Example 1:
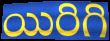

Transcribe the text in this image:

యిరిగి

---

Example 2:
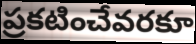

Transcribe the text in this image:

ప్రకటించేవరకూ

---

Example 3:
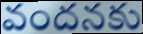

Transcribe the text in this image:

వందనకు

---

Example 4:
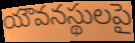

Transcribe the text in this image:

యౌవనస్థులపై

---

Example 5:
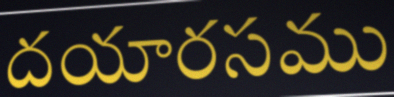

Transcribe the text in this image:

దయారసము